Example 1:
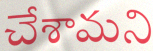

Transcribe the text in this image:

చేశామని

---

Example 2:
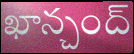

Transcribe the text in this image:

ఖాన్చంద్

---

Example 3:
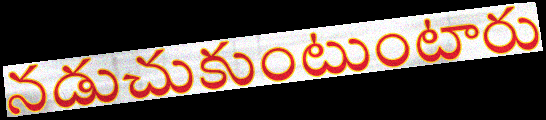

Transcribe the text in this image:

నడుచుకుంటుంటారు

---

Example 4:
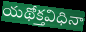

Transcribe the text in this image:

యథోక్తవిధినా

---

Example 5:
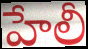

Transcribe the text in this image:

హేలీ